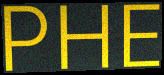
PHE